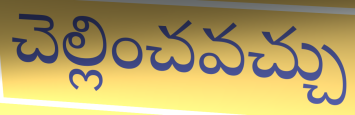
చెల్లించవచ్చు